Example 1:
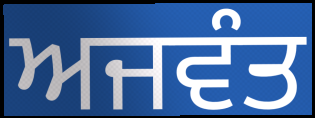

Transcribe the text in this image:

ਅਜਵੰਤ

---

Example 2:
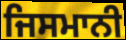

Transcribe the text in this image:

ਜਿਸਮਾਨੀ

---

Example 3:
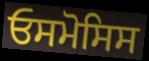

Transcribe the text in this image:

ਓਸਮੋਸਿਸ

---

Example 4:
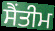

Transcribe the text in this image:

ਸੈਂਤੀਮ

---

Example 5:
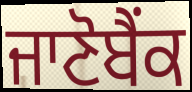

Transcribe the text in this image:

ਜਾਣੋਬੈਂਕ